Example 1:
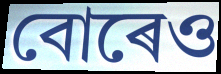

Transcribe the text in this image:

বোৰেও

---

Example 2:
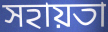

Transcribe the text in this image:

সহায়তা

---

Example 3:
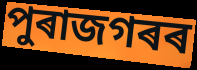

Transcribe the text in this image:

পুৰাজগৰৰ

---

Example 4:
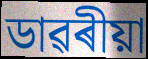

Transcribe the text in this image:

ডাৱৰীয়া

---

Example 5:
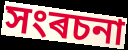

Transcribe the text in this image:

সংৰচনা